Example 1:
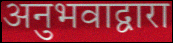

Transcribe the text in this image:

अनुभवाद्वारा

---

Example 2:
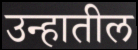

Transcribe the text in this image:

उन्हातील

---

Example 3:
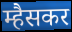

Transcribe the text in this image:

म्हैसकर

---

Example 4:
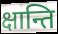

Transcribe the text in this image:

क्षान्ति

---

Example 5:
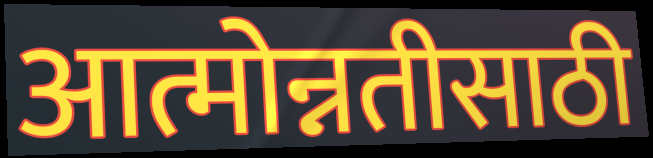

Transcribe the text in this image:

आत्मोन्नतीसाठी